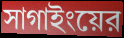
সাগাইংয়ের